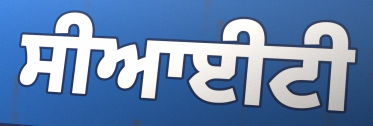
ਸੀਆਈਟੀ